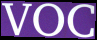
VOC